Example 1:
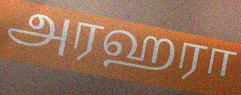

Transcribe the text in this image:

அரஹரா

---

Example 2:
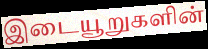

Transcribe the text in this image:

இடையூறுகளின்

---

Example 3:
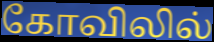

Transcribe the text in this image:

கோவிலில்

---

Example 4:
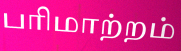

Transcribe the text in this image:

பரிமாற்றம்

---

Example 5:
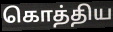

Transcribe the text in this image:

கொத்திய